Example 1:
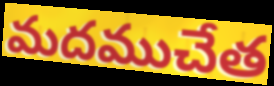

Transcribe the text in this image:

మదముచేత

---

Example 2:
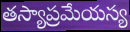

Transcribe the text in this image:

తస్యాప్రమేయస్య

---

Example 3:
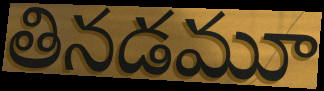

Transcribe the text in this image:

తినడమూ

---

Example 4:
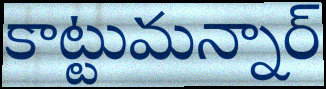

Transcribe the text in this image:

కాట్టుమన్నార్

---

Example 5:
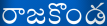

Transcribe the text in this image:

రాజకొండ